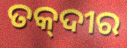
ତକ୍‌ଦୀର